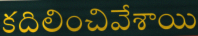
కదిలించివేశాయి